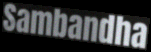
Sambandha